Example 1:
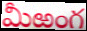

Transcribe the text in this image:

మీఱంగ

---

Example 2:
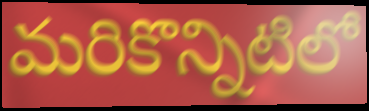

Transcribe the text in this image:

మరికొన్నిటిలో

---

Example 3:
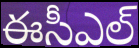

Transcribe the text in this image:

ఈసీఎల్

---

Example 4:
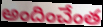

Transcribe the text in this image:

అందించేంత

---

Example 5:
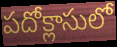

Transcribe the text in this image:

పదోక్లాసులో